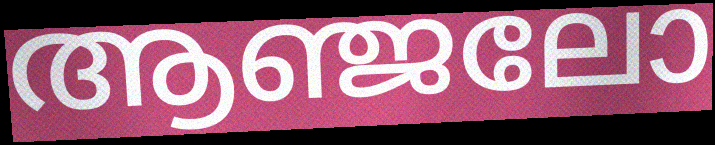
ആഞ്ജലോ